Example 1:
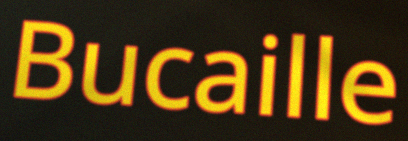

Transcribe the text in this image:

Bucaille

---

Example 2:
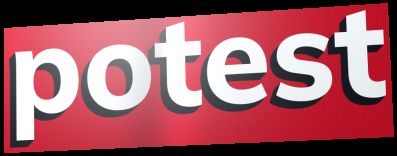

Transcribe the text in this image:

potest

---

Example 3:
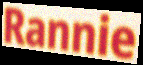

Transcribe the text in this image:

Rannie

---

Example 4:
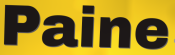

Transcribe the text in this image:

Paine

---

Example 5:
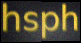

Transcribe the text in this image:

hsph